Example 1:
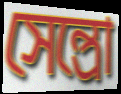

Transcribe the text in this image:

সেন্ত্রো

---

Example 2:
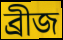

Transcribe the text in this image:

ব্রীজ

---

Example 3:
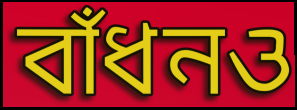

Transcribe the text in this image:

বাঁধনও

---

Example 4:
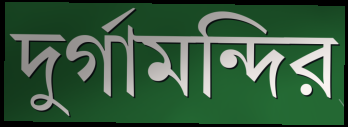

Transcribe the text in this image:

দুর্গামন্দির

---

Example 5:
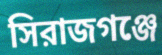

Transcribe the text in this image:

সিরাজগঞ্জে